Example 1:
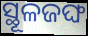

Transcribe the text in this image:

ସ୍ଥୂଳଜଙ୍ଘ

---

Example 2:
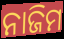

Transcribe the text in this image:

ନାଜିମ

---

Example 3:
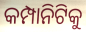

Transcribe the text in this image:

କମ୍ପାନିଟିକୁ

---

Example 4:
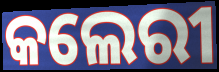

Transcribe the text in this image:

କଲେରୀ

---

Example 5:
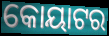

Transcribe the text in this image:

କୋୟାଟର